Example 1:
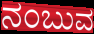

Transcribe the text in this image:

ನಂಬುವ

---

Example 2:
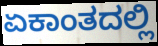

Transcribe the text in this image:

ಏಕಾಂತದಲ್ಲಿ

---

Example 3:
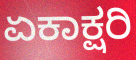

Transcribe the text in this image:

ಏಕಾಕ್ಷರಿ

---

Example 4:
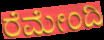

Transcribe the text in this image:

ರೆಮೇಂದಿ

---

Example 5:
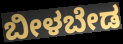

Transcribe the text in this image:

ಬೀಳಬೇಡ